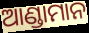
ଆଣ୍ଡାମାନ